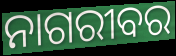
ନାଗରୀବର